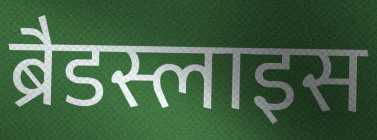
ब्रैडस्लाइस